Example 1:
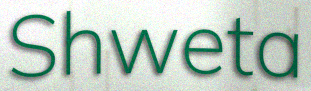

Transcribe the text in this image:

Shweta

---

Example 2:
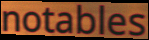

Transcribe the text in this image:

notables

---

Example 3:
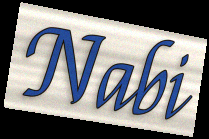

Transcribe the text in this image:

Nabi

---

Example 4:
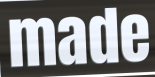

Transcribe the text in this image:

made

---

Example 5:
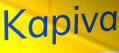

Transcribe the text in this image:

Kapiva